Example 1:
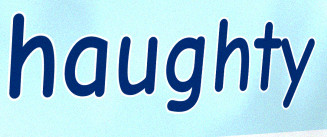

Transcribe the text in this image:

haughty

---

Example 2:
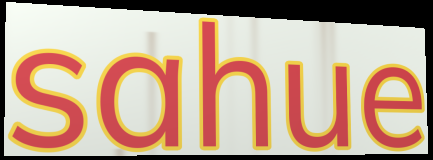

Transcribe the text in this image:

sahue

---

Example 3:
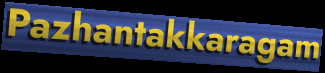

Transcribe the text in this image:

Pazhantakkaragam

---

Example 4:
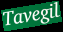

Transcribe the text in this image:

Tavegil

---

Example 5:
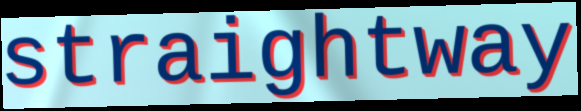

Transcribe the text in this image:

straightway